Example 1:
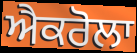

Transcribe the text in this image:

ਐਕਰੋਲਾ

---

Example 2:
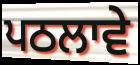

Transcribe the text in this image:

ਪਠਲਾਵੇ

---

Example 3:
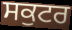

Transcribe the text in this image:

ਸਕੁਟਰ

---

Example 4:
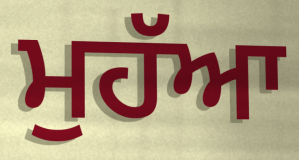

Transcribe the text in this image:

ਮੁਹੱਆ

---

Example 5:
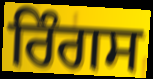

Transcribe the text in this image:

ਰਿੰਗਸ